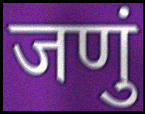
जणुं